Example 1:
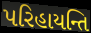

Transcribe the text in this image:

પરિહાયન્તિ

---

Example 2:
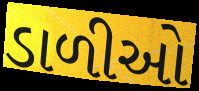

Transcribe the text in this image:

ડાળીઓ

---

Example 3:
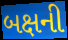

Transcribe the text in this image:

બક્ષની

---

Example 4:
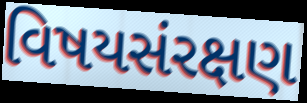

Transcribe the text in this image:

વિષયસંરક્ષણ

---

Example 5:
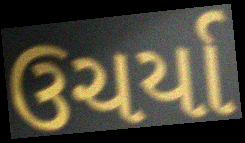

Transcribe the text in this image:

ઉચર્યા